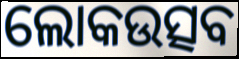
ଲୋକଉତ୍ସବ